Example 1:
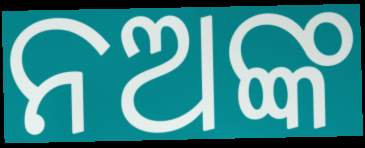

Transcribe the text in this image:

ନଅଙ୍କ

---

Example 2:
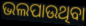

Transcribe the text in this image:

ଭଲପାଉଥିବା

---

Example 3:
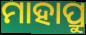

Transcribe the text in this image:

ମାହାପ୍ରୁ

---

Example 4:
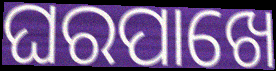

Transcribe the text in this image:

ଘରପାଖେ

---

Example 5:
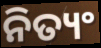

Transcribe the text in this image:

ନିତ୍ୟଂ